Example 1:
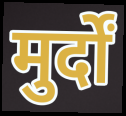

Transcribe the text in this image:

मुर्दों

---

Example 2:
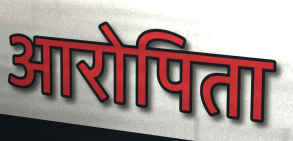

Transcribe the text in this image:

आरोपिता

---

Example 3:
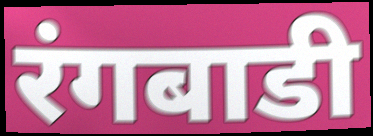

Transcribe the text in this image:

रंगबाडी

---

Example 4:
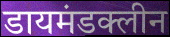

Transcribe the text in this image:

डायमंडक्लीन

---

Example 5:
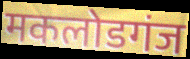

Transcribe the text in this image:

मकलोडगंज